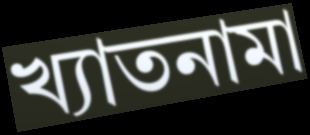
খ্যাতনামা